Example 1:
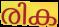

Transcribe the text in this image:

രിക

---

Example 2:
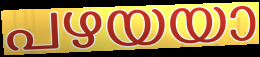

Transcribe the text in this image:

പഴയയാ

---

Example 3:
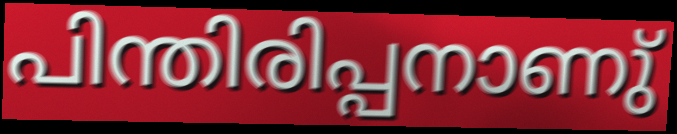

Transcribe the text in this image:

പിന്തിരിപ്പനാണു്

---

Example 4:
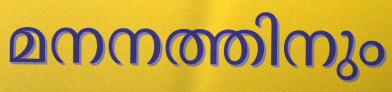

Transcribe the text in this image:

മനനത്തിനും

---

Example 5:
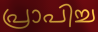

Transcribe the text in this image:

പ്രാപിച്ച